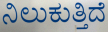
ನಿಲುಕುತ್ತಿದೆ